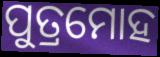
ପୁତ୍ରମୋହ